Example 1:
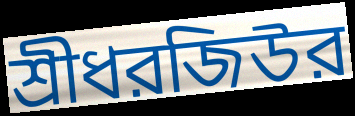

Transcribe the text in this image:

শ্রীধরজিউর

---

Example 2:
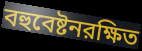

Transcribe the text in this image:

বহুবেষ্টনরক্ষিত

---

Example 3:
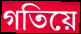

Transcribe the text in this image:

গতিয়ে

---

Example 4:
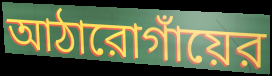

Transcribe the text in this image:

আঠারোগাঁয়ের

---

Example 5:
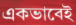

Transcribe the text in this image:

একভাবেই